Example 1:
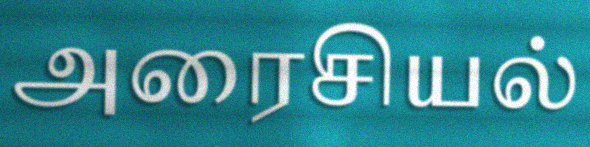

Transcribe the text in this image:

அரைசியல்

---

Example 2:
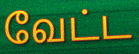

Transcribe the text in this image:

வேட்ட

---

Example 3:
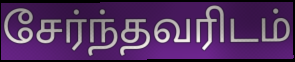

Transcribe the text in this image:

சேர்ந்தவரிடம்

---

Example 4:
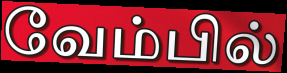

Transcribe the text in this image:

வேம்பில்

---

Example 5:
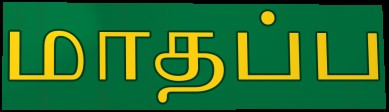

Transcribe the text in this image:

மாதப்ப